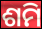
ଶମି